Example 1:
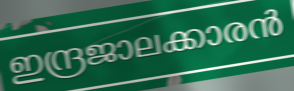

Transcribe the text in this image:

ഇന്ദ്രജാലക്കാരൻ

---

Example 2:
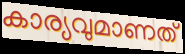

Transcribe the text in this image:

കാര്യവുമാണത്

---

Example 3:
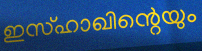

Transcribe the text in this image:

ഇസ്ഹാഖിന്റെയും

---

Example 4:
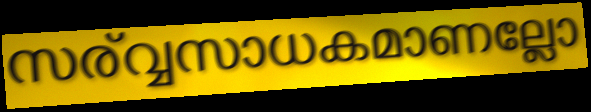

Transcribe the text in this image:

സര്വ്വസാധകമാണല്ലോ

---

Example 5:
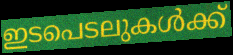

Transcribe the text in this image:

ഇടപെടലുകൾക്ക്